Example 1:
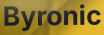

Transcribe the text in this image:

Byronic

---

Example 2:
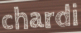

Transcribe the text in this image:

chardi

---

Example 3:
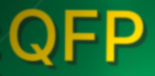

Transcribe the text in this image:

QFP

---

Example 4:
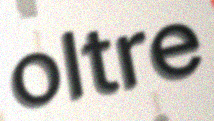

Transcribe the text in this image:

oltre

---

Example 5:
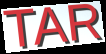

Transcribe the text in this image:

TAR